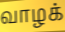
வாழக்